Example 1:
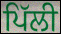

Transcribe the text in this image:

ਪਿੱਲੀ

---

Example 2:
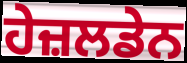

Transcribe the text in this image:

ਹੇਜ਼ਲਡੇਨ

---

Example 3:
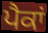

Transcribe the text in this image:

ਪੈਕਾਂ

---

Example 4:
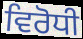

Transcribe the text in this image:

ਵਿਰੋਧੀ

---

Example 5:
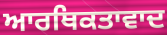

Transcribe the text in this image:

ਆਰਥਿਕਤਾਵਾਦ